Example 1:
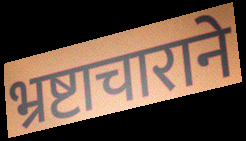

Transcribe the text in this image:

भ्रष्टाचाराने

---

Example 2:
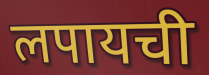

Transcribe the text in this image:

लपायची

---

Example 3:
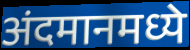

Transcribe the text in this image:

अंदमानमध्ये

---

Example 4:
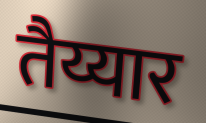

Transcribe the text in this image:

तैय्यार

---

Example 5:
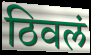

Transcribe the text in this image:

ठिवलं